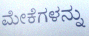
ಮೇಕೆಗಳನ್ನು